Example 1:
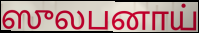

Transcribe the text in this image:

ஸுலபனாய்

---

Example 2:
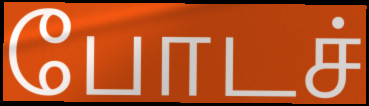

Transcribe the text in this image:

போடச்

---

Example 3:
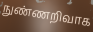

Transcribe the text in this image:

நுண்ணறிவாக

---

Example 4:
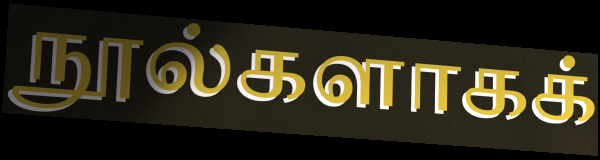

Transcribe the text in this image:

நூல்களாகக்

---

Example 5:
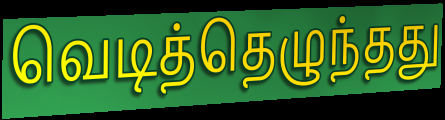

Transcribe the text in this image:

வெடித்தெழுந்தது